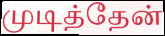
முடித்தேன்